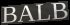
BALB